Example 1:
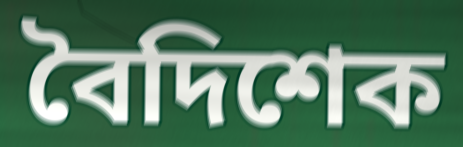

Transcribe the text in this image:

বৈদিশেক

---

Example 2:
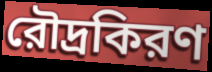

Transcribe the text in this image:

রৌদ্রকিরণ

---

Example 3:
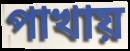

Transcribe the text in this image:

পাখায়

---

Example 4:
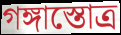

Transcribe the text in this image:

গঙ্গাস্তোত্র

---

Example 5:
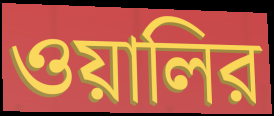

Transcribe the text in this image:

ওয়ালির